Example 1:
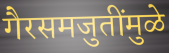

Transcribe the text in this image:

गैरसमजुतींमुळे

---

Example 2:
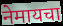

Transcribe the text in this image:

नेमायचा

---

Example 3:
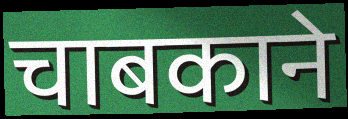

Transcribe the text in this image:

चाबकाने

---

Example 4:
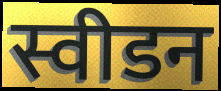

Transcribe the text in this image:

स्वीडन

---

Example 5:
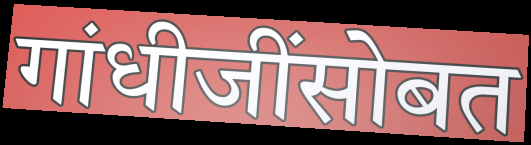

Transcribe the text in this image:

गांधीजींसोबत